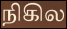
நிகில